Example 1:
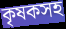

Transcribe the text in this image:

কৃষকসহ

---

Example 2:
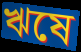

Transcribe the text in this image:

ঋষে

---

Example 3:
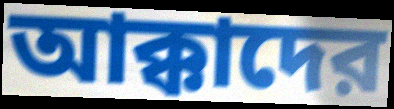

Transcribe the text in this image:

আক্কাদের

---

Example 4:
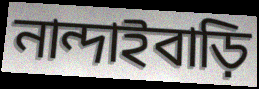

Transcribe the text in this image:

নান্দাইবাড়ি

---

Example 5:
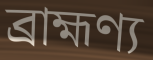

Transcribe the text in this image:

ব্রাহ্মণ্য